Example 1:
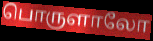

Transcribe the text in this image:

பொருளாலோ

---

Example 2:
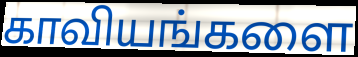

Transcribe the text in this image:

காவியங்களை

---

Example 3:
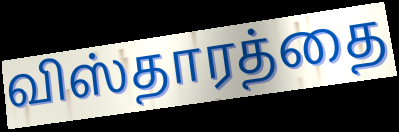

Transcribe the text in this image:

விஸ்தாரத்தை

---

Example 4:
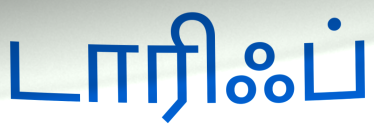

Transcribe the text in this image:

டாரிஃப்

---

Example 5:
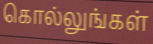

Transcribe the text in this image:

கொல்லுங்கள்